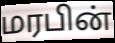
மரபின்